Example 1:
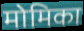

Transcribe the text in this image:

मोमिका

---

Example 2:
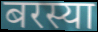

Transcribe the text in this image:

बरस्या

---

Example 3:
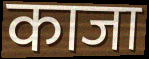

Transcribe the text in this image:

काजा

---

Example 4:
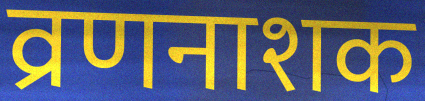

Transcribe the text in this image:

व्रणनाशक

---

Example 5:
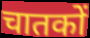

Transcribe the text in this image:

चातकों